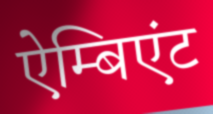
ऐम्बिएंट